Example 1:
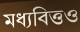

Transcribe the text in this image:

মধ্যবিত্তও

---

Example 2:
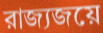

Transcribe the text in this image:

রাজ্যজয়ে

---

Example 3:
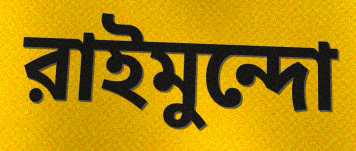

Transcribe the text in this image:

রাইমুন্দো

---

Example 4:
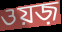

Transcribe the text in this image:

ওয়জ়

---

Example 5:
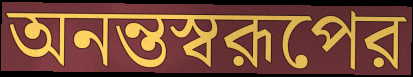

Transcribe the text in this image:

অনন্তস্বরূপের